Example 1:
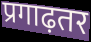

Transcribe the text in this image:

प्रगाढ़तर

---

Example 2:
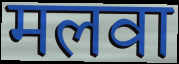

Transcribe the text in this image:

मलवा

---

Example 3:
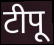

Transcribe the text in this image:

टीपू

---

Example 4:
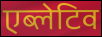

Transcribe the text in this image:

एब्लेटिव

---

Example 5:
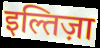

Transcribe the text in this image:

इल्तिज़ा